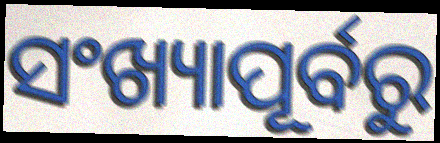
ସଂଖ୍ୟାପୂର୍ବରୁ